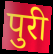
पुरी